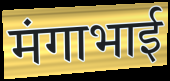
मंगाभाई